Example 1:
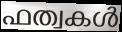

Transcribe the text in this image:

ഫത്വകൾ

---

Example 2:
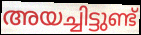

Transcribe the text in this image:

അയച്ചിട്ടുണ്ട്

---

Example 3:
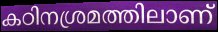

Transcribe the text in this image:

കഠിനശ്രമത്തിലാണ്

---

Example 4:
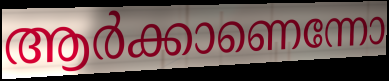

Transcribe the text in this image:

ആർക്കാണെന്നോ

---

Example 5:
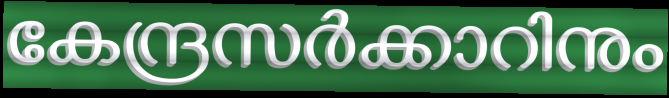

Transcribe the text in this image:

കേന്ദ്രസർക്കാറിനും